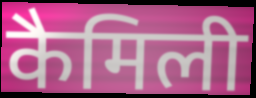
कैमिली